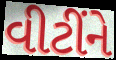
વીટીંને